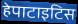
हेपाटाइटिस